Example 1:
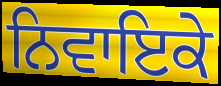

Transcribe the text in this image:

ਨਿਵਾਇਕੇ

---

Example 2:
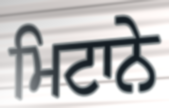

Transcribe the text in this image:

ਮਿਟਾਨੇ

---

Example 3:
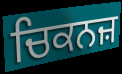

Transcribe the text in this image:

ਚਿਕਨਜ਼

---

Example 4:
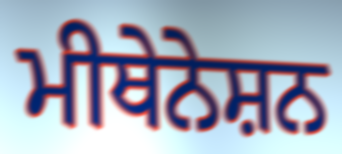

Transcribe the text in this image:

ਮੀਥੇਨੇਸ਼ਨ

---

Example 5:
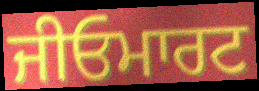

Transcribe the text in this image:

ਜੀਓਮਾਰਟ